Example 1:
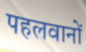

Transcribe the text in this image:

पहलवानों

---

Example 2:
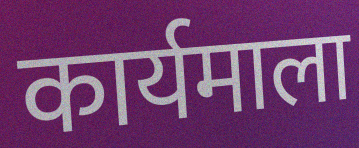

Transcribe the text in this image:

कार्यमाला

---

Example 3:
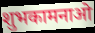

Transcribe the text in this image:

शुभकामनाओ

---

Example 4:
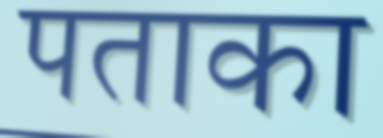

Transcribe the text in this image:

पताका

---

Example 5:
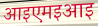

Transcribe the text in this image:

आइएमइआइ